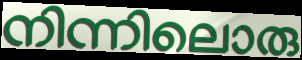
നിന്നിലൊരു